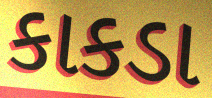
કાકડા